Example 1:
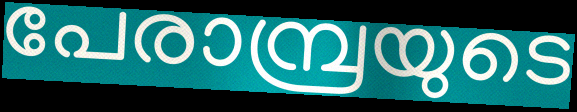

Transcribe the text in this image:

പേരാമ്പ്രയുടെ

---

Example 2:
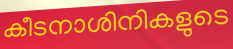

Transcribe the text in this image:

കീടനാശിനികളുടെ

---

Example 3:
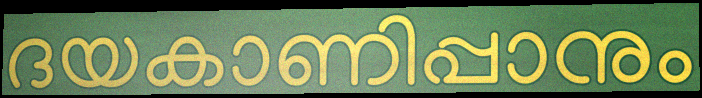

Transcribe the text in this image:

ദയകാണിപ്പാനും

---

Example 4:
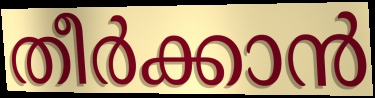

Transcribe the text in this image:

തീർക്കാൻ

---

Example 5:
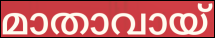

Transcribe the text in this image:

മാതാവായ്